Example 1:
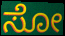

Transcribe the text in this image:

ಸೋ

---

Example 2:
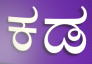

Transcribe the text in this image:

ಕಡ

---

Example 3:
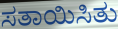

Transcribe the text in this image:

ಸತಾಯಿಸಿತು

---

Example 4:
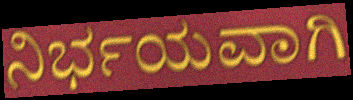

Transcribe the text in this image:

ನಿರ್ಭಯವಾಗಿ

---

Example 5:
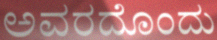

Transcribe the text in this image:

ಅವರದೊಂದು